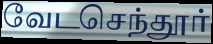
வேடசெந்தூர்